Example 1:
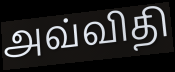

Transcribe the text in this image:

அவ்விதி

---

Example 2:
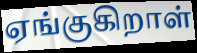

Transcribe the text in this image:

ஏங்குகிறாள்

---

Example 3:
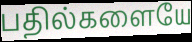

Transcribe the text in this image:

பதில்களையே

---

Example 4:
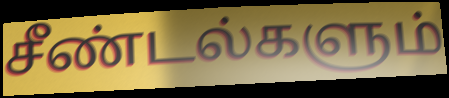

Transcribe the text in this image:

சீண்டல்களும்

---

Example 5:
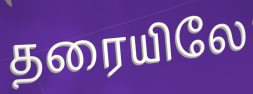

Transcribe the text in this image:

தரையிலே